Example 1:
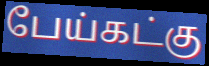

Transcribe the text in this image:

பேய்கட்கு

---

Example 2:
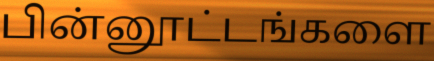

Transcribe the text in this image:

பின்னூட்டங்களை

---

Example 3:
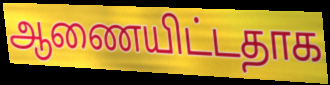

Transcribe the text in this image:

ஆணையிட்டதாக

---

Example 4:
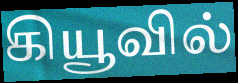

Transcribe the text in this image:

கியூவில்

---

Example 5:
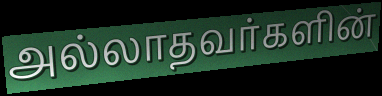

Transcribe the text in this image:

அல்லாதவர்களின்